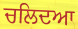
ਚਲਿਦਆ